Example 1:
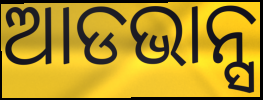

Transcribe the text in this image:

ଆଡଭାନ୍ସ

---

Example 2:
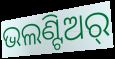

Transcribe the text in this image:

ଭଲଣ୍ଟିଅର୍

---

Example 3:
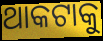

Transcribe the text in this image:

ଥାକଟାକୁ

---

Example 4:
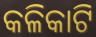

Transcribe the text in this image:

କଳିକାଟି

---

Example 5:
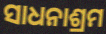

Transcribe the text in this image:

ସାଧନାଶ୍ରମ